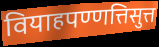
वियाहपण्णत्तिसुत्त